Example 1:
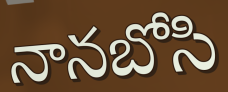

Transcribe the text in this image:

నానబోసి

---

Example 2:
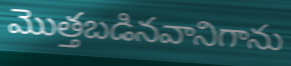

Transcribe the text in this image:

మొత్తబడినవానిగాను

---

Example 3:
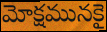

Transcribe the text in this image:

మోక్షమునకై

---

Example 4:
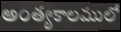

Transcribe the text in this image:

అంత్యకాలములో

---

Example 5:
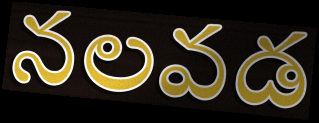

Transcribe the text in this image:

నలవడ